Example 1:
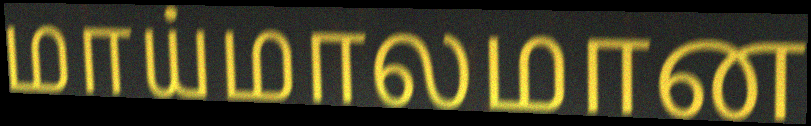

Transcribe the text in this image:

மாய்மாலமான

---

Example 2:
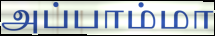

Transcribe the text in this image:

அப்பாம்மா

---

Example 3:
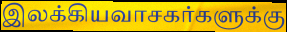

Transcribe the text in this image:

இலக்கியவாசகர்களுக்கு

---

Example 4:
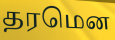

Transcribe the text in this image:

தரமென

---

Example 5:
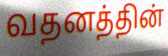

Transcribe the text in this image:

வதனத்தின்